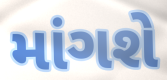
માંગશે